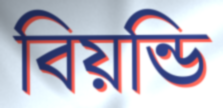
বিয়ন্ডি